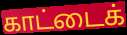
காட்டைக்